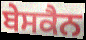
ਬੇਸਕੈਨ